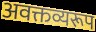
अवक्तव्यरूप